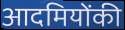
आदमियोंकी